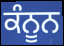
ਕੰਨੂਨ